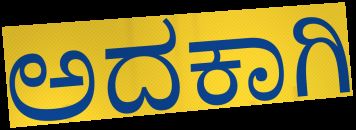
ಅದಕಾಗಿ